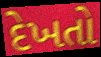
દેખતો